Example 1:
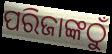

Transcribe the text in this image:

ପରିଜାଙ୍କଠୁଁ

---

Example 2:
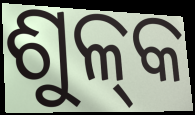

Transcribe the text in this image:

ଶୁଳ୍‌କ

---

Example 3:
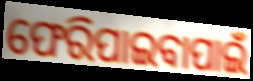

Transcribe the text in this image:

ଫେରିପାଇବାପାଇଁ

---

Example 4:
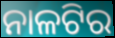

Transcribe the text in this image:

ନାଳଟିର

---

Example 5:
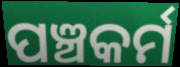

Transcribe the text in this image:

ପଞ୍ଚକର୍ମ